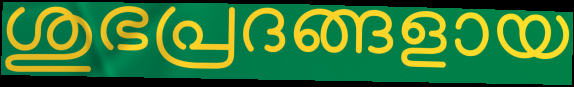
ശുഭപ്രദങ്ങളായ